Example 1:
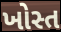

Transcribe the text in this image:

ખોસ્ત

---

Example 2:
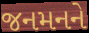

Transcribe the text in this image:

જનમનને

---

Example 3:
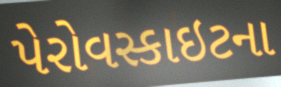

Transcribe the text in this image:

પેરોવસ્કાઇટના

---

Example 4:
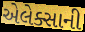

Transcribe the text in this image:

એલેક્સાની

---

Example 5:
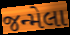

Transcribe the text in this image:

જન્મેલા